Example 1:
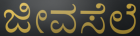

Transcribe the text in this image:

ಜೀವಸೆಲೆ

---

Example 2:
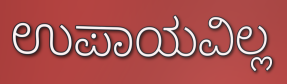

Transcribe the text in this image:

ಉಪಾಯವಿಲ್ಲ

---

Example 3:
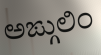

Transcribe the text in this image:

ಅಙ್ಗುಲಿಂ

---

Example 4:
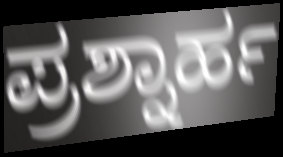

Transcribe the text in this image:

ಪ್ರಶ್ನಾರ್ಹ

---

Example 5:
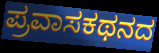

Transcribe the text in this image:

ಪ್ರವಾಸಕಥನದ